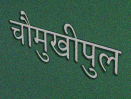
चौमुखीपुल